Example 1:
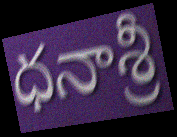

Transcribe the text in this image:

ధనాశ్రీ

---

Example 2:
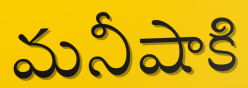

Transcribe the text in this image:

మనీషాకి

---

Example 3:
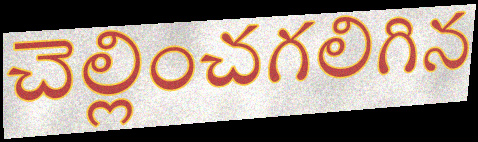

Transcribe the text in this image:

చెల్లించగలిగిన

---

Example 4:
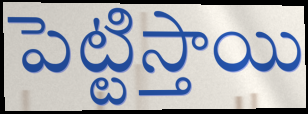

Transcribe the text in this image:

పెట్టిస్తాయి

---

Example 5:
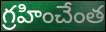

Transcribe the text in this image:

గ్రహించేంత